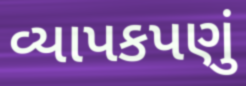
વ્યાપકપણું